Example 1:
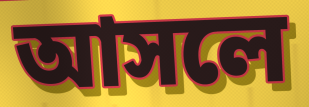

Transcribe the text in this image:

আসলে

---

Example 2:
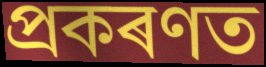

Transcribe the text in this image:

প্ৰকৰণত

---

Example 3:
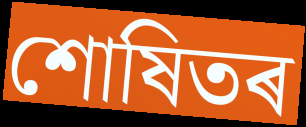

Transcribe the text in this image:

শোষিতৰ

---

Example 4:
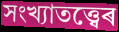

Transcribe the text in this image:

সংখ্যাতত্ত্বেৰ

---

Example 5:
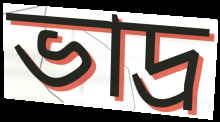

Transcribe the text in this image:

ভাদ্ৰ